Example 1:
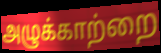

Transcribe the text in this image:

அழுக்காற்றை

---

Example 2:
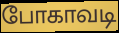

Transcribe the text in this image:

போகாவடி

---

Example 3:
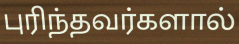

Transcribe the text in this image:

புரிந்தவர்களால்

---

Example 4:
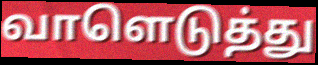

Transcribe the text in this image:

வாளெடுத்து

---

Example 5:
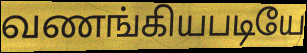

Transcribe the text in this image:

வணங்கியபடியே